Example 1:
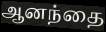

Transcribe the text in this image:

ஆனந்தை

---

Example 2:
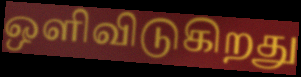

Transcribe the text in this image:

ஒளிவிடுகிறது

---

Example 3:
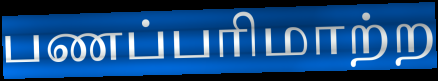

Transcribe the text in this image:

பணப்பரிமாற்ற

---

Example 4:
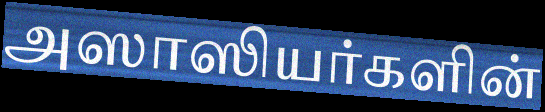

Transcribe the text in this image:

அஸாஸியர்களின்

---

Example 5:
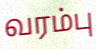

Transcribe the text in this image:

வரம்பு